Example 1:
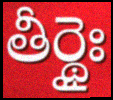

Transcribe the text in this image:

తీర్థైః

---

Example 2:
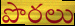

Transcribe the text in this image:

పొరలు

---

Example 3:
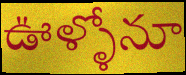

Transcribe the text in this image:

ఊళ్ళోనూ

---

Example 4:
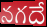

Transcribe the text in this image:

నగదే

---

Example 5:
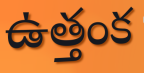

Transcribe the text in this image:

ఉత్తంక